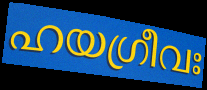
ഹയഗ്രീവഃ